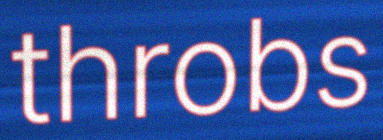
throbs